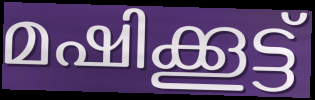
മഷിക്കൂട്ട്